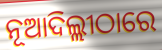
ନୂଆଦିଲ୍ଲୀଠାରେ